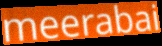
meerabai